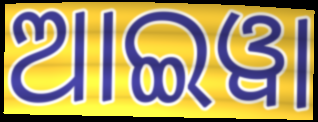
ଆଇୱା